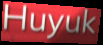
Huyuk